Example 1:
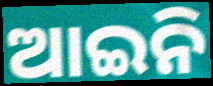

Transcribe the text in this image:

ଆଇନି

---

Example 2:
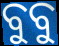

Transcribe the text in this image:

ବୁବୁ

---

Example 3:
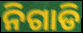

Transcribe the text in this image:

ନିଗାଡି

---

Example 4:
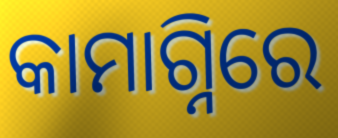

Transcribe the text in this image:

କାମାଗ୍ନିରେ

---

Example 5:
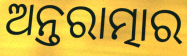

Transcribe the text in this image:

ଅନ୍ତରାତ୍ମାର